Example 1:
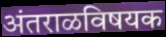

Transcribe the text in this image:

अंतराळविषयक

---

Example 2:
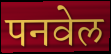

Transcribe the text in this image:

पनवेल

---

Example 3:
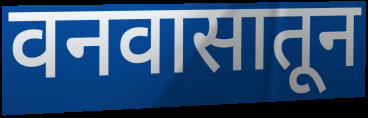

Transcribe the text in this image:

वनवासातून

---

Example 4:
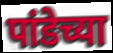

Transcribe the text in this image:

पांडेच्या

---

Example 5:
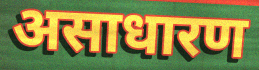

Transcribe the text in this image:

असाधारण